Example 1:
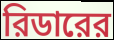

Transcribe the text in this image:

রিডারের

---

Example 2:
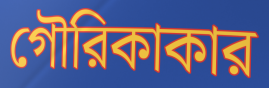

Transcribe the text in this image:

গৌরিকাকার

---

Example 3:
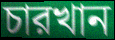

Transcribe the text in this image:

চারখান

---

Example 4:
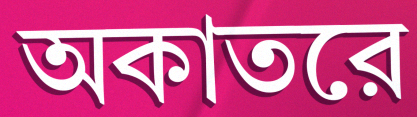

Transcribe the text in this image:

অকাতরে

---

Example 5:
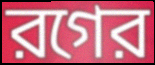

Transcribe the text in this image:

রগের